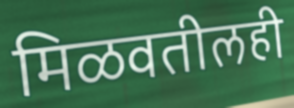
मिळवतीलही